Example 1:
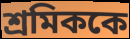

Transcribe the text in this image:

শ্রমিককে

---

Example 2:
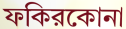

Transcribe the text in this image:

ফকিরকোনা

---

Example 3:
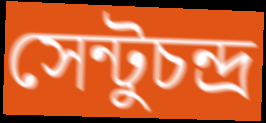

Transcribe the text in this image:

সেন্টুচন্দ্র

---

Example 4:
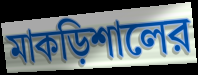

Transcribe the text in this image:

মাকড়িশালের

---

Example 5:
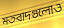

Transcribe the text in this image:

মতবাদগুলোও